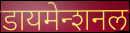
डायमेन्शनल